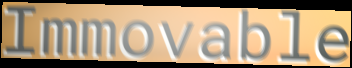
Immovable